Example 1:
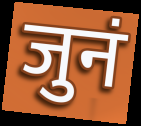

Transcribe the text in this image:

जुनं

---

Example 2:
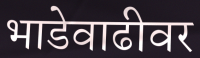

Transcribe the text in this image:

भाडेवाढीवर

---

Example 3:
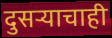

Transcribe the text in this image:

दुसऱ्याचाही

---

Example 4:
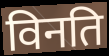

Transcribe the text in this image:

विनति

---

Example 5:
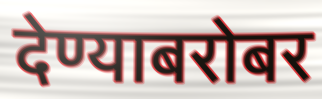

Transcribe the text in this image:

देण्याबरोबर